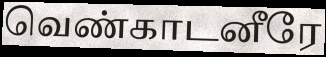
வெண்காடனீரே